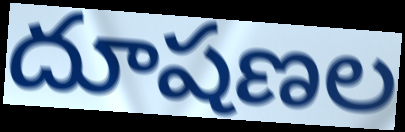
దూషణల